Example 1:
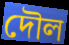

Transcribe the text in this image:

দৌল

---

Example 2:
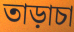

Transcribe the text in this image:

তাড়াচা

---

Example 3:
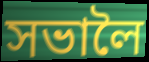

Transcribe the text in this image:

সভালৈ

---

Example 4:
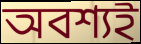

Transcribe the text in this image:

অবশ্যই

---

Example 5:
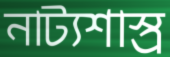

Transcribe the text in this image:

নাট্যশাস্ত্ৰ